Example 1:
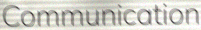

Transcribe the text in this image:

Communication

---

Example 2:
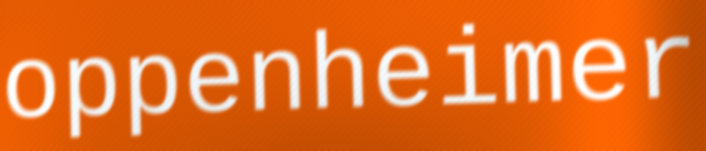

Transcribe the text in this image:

oppenheimer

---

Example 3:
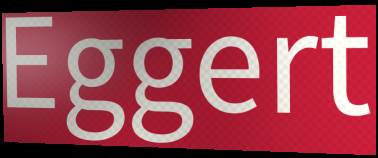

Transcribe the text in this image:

Eggert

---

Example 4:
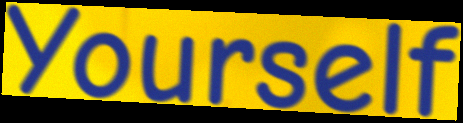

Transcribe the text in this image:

Yourself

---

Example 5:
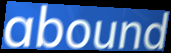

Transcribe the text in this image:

abound